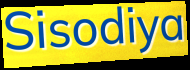
Sisodiya